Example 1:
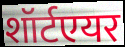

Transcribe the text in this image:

शॉर्टएयर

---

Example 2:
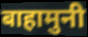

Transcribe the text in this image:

बाहामुनी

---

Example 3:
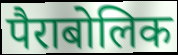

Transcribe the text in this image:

पैराबोलिक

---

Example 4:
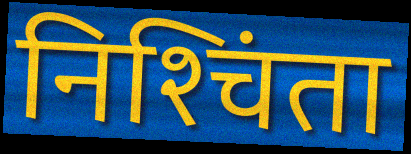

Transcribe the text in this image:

निश्चिंता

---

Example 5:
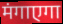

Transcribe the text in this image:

मंगाएगा